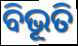
ବିଭୂତି